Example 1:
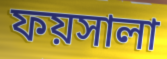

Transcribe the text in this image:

ফয়সালা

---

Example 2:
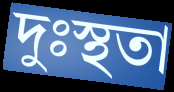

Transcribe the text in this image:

দুঃস্থতা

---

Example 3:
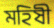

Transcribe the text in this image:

মহিষী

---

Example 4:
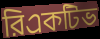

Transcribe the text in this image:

রিএকটিভ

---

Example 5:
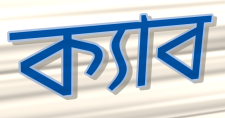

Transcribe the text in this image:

ক্যাব